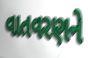
વાતવરણને